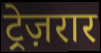
ट्रेज़रार